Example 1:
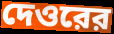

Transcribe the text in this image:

দেওরের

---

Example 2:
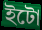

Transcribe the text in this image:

ইটো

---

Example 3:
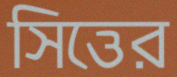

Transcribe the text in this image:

সিত্তের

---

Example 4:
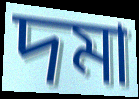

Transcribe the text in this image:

দমা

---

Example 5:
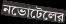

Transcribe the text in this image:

নভোটেলের